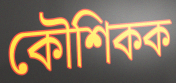
কৌশিকক